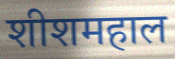
शीशमहाल